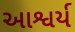
આશ્વર્ય